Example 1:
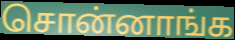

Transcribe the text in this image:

சொன்னாங்க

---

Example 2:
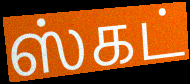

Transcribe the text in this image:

ஸ்கட்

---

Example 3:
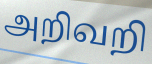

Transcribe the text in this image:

அறிவறி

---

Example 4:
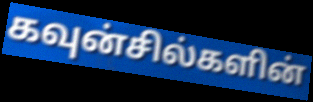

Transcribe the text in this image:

கவுன்சில்களின்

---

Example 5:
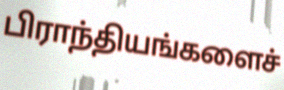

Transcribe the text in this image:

பிராந்தியங்களைச்